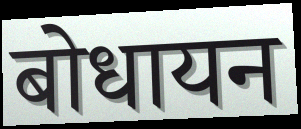
बोधायन